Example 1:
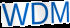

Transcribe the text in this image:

WDM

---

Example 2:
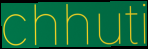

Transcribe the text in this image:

chhuti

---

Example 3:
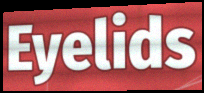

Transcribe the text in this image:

Eyelids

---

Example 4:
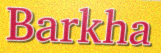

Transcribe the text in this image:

Barkha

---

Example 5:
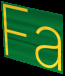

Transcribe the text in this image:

Fa